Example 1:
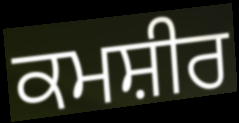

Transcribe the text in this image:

ਕਮਸ਼ੀਰ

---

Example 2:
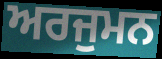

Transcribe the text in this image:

ਅਰਜੁਮਨ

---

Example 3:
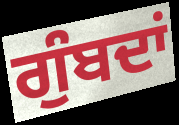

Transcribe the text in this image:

ਗੁੰਬਦਾਂ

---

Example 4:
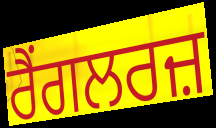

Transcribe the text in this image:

ਰੈਂਗਲਰਜ਼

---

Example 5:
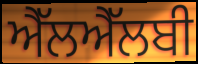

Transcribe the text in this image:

ਐੱਲਐੱਲਬੀ